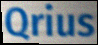
Qrius